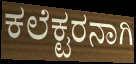
ಕಲೆಕ್ಟರನಾಗಿ